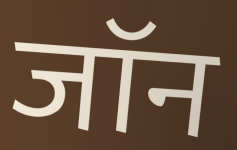
जॉन